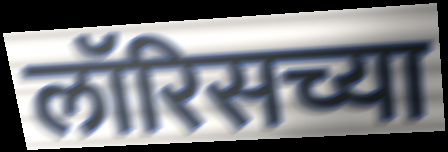
लॉरिसच्या